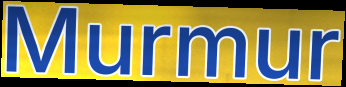
Murmur